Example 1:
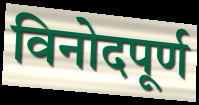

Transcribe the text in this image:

विनोदपूर्ण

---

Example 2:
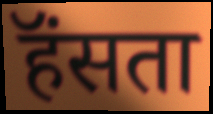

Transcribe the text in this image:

हॅंसता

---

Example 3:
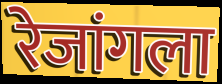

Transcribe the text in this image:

रेजांगला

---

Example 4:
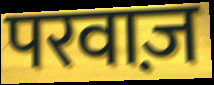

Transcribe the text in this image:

परवाज़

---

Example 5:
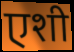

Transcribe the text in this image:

एशी